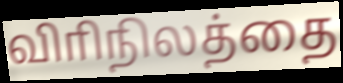
விரிநிலத்தை